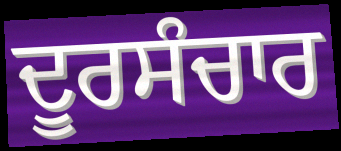
ਦੂਰਸੰਚਾਰ